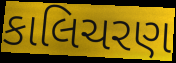
કાલિચરણ